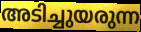
അടിച്ചുയരുന്ന